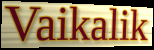
Vaikalik